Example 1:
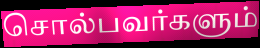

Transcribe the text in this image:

சொல்பவர்களும்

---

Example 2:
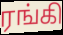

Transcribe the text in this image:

ரங்கி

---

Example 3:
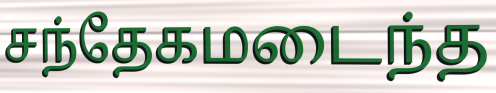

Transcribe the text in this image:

சந்தேகமடைந்த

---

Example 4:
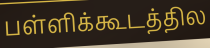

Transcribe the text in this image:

பள்ளிக்கூடத்தில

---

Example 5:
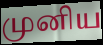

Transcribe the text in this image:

முனிய